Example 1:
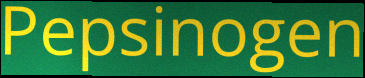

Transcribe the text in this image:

Pepsinogen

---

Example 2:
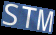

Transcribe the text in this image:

STM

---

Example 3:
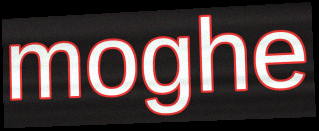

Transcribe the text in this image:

moghe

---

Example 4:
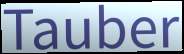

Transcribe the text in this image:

Tauber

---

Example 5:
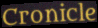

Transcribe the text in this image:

Cronicle